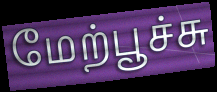
மேற்பூச்சு